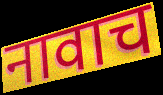
नावाच